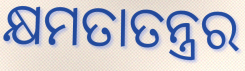
କ୍ଷମତାତନ୍ତ୍ରର